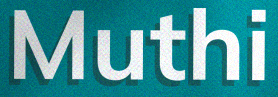
Muthi